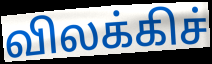
விலக்கிச்